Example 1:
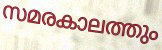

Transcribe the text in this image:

സമരകാലത്തും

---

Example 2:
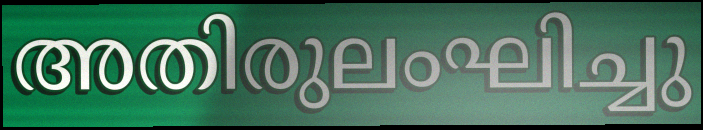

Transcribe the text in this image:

അതിരുലംഘിച്ചു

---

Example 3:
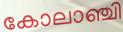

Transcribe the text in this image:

കോലാഞ്ചി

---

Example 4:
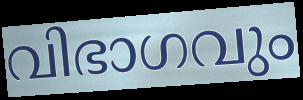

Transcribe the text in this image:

വിഭാഗവും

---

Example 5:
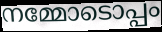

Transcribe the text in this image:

നമ്മോടൊപ്പം